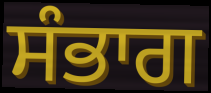
ਸੰਭਾਗ